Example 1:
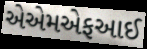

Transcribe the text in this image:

એએમએફઆઈ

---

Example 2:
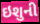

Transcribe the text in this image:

ઇશુની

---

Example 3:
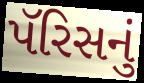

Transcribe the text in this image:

પૅરિસનું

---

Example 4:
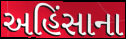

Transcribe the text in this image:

અહિંસાના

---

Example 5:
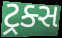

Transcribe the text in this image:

ટ્રક્સ